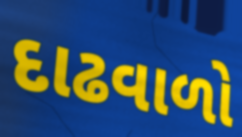
દાઢવાળો